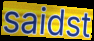
saidst